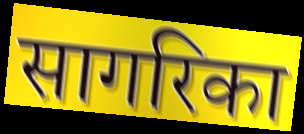
सागरिका